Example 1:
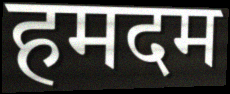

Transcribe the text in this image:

हमदम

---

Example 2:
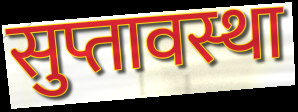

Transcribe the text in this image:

सुप्तावस्था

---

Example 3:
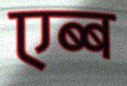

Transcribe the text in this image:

एब्ब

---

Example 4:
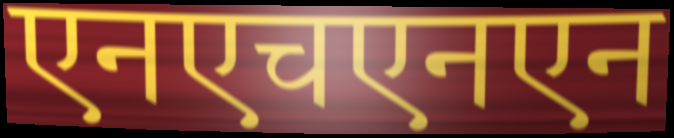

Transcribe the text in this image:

एनएचएनएन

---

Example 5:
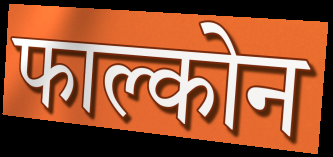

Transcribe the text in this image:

फाल्कोन